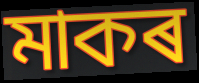
মাকৰ